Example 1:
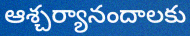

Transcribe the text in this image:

ఆశ్చర్యానందాలకు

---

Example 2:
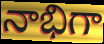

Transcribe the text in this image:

నాభిగా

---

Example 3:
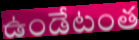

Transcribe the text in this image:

ఉండేటంత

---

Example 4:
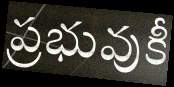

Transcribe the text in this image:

ప్రభువుకీ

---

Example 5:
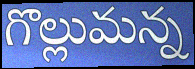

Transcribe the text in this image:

గొల్లుమన్న